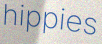
hippies